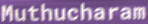
Muthucharam